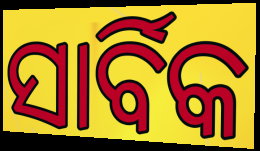
ସାର୍ବିକ